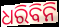
ଧରିବିନି